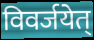
विवर्जयेत्